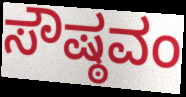
ಸೌಷ್ಠವಂ